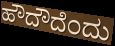
ಹೌದೌದೆಂದು